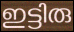
ഇട്ടിരു